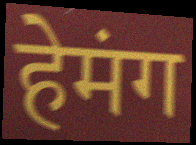
हेमंग